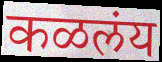
कळलंय